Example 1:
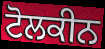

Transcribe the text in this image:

ਟੋਲਕੀਨ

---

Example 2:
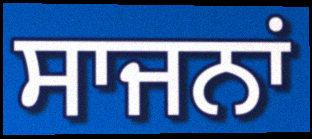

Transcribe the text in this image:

ਸਾਜਨਾਂ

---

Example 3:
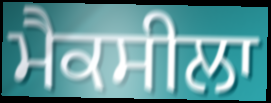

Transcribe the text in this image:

ਮੈਕਸੀਲਾ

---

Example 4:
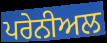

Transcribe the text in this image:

ਪਰੇਨੀਅਲ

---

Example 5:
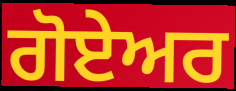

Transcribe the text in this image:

ਗੋਏਅਰ